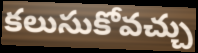
కలుసుకోవచ్చు